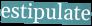
estipulate